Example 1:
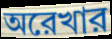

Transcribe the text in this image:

অরেখার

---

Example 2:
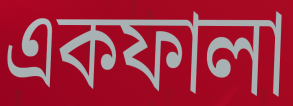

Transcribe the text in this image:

একফালা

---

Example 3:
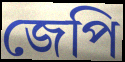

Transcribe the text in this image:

জেপি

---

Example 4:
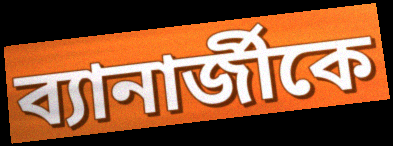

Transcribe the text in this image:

ব্যানার্জীকে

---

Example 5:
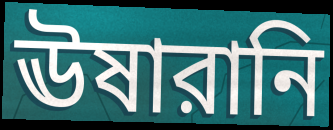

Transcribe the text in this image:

ঊষারানি